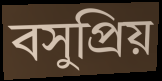
বসুপ্রিয়